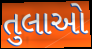
તુલાઓ